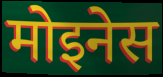
मोइनेस